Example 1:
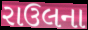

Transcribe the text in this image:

રાઉલના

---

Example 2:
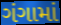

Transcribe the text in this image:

ગંગામાં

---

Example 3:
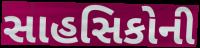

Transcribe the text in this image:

સાહસિકોની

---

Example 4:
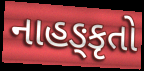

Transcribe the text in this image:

નાહઙ્કૃતો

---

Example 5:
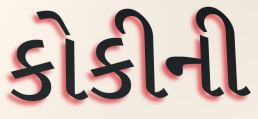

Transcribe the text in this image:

કોકીની